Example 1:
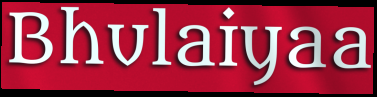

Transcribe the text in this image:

Bhulaiyaa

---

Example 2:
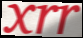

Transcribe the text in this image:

xrr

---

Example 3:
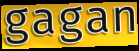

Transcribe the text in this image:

gagan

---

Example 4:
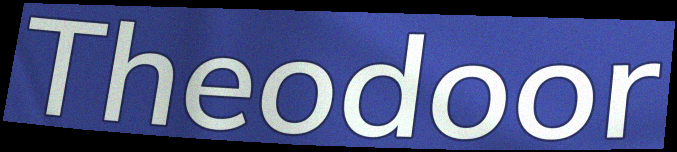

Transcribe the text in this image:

Theodoor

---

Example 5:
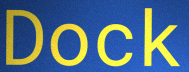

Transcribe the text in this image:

Dock